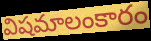
విషమాలంకారం